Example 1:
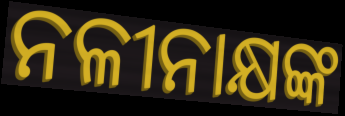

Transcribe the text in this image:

ନଳୀନାକ୍ଷଙ୍କ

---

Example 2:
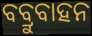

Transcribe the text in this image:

ବବ୍ରୁବାହନ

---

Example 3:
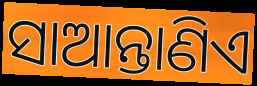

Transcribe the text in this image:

ସାଆନ୍ତାଣିଏ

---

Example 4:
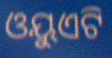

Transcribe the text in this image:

ଓୟୁଏଟି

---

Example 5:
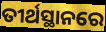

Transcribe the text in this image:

ତୀର୍ଥସ୍ଥାନରେ